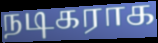
நடிகராக